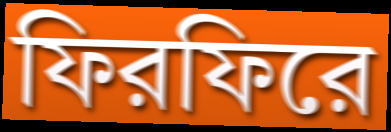
ফিরফিরে